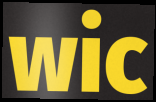
wic